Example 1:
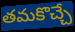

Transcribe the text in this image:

తమకొచ్చే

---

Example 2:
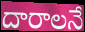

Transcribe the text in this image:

దారాలనే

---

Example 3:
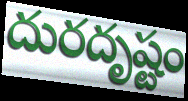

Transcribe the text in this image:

దురదృష్టం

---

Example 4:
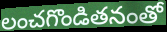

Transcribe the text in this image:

లంచగొండితనంతో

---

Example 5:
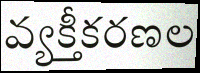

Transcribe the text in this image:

వ్యక్తీకరణల